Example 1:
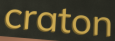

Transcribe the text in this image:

craton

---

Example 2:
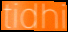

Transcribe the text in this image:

tidhi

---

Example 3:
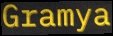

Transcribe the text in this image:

Gramya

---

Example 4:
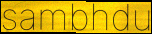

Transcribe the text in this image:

sambhdu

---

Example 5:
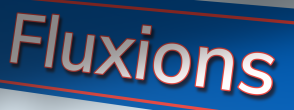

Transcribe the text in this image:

Fluxions